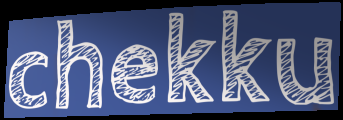
chekku